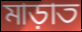
মাড়াত